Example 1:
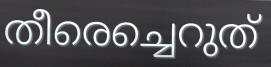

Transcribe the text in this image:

തീരെച്ചെറുത്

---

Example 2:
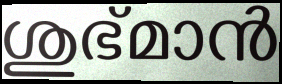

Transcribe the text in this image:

ശുഭ്മാൻ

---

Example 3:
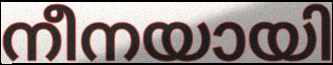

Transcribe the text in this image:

നീനയായി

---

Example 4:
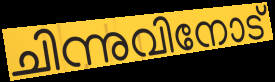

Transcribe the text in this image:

ചിന്നുവിനോട്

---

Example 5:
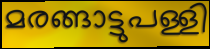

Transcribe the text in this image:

മരങ്ങാട്ടുപള്ളി